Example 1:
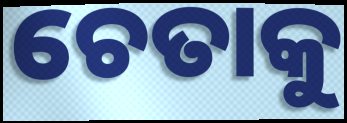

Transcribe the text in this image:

ଚେତାକୁ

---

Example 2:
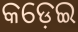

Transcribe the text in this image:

କଡ଼େଇ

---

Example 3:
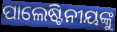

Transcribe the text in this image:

ପାଲେଷ୍ଟିନୀୟଙ୍କୁ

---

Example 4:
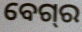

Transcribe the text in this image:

ବେଗ୍‌ର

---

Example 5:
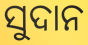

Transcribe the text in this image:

ସୁଦାନ